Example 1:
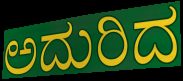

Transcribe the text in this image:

ಅದುರಿದ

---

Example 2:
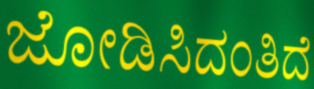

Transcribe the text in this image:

ಜೋಡಿಸಿದಂತಿದೆ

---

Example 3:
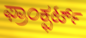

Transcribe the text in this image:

ಫ್ರಾಂಕ್ಫರ್ಟ್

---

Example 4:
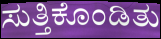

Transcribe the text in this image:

ಸುತ್ತಿಕೊಂಡಿತು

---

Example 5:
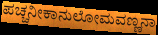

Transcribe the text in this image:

ಪಚ್ಚನೀಕಾನುಲೋಮವಣ್ಣನಾ